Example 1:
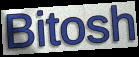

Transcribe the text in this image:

Bitosh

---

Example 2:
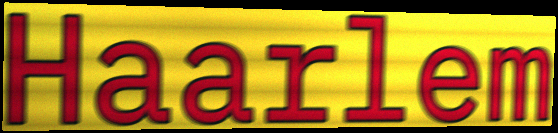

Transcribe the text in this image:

Haarlem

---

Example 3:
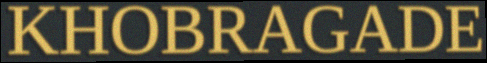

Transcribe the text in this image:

KHOBRAGADE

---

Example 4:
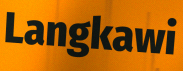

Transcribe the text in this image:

Langkawi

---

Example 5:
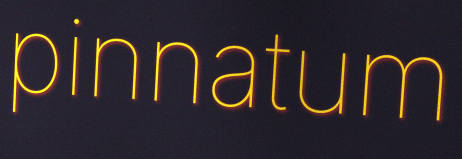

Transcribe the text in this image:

pinnatum